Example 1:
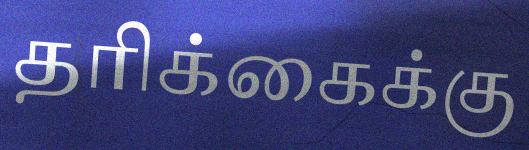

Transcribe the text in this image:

தரிக்கைக்கு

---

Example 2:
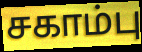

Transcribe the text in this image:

சகாம்பு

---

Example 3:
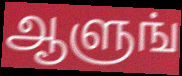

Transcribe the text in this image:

ஆளுங்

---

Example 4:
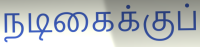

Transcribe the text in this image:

நடிகைக்குப்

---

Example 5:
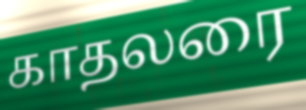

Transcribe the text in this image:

காதலரை